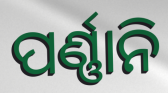
ପର୍ଣ୍ଣାନି